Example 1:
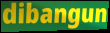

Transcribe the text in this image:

dibangun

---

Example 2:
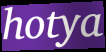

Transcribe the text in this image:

hotya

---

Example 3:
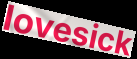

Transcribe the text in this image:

lovesick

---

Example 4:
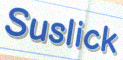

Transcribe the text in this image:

Suslick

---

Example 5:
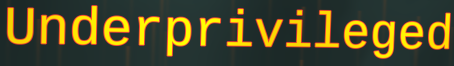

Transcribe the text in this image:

Underprivileged